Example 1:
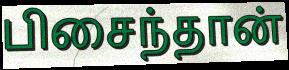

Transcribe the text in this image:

பிசைந்தான்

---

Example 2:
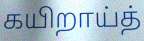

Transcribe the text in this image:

கயிறாய்த்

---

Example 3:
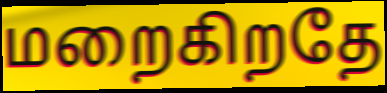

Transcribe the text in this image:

மறைகிறதே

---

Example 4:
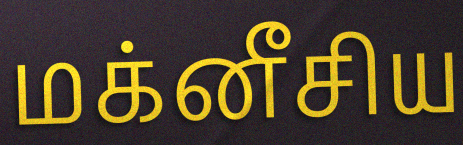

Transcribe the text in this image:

மக்னீசிய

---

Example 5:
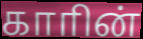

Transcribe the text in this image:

காரின்